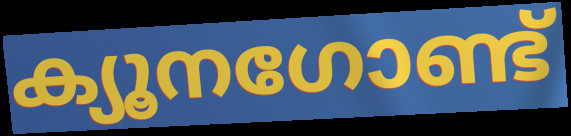
ക്യൂനഗോണ്ട്